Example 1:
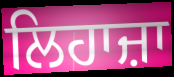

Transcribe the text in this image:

ਲਿਹਾਜ਼ਾ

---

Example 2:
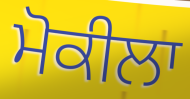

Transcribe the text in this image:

ਮੋਕੀਲਾ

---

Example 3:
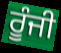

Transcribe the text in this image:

ਰੂੰਜੀ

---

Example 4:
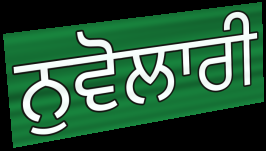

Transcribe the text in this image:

ਨੁਵੋਲਾਰੀ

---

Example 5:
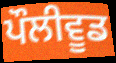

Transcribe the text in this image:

ਪੌਲੀਵੂਡ